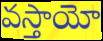
వస్తాయో